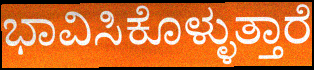
ಭಾವಿಸಿಕೊಳ್ಳುತ್ತಾರೆ